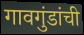
गावगुंडांची